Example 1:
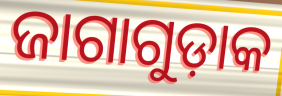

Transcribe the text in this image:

ଜାଗାଗୁଡ଼ାକ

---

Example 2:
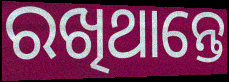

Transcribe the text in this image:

ରଖିଥାନ୍ତେ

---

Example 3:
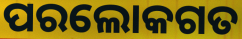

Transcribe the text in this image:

ପରଲୋକଗତ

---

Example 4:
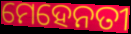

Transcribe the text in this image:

ମେହେନତୀ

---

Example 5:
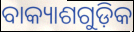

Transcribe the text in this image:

ବାକ୍ୟାଶଗୁଡ଼ିକ